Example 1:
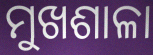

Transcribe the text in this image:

ମୁଖଶାଳା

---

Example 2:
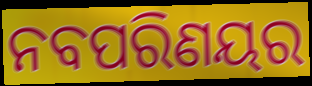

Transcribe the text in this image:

ନବପରିଣୟର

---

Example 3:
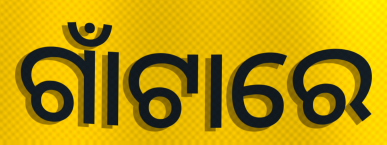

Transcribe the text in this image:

ଗାଁଟାରେ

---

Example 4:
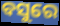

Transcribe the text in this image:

ବସୁରେ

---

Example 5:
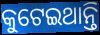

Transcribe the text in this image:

କୁଟେଇଥାନ୍ତି